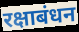
रक्षाबंधन